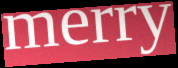
merry